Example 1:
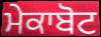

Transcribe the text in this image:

ਮੇਕਾਬੋਟ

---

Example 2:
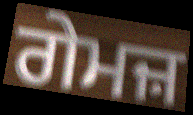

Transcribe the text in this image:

ਗੇਮਜ਼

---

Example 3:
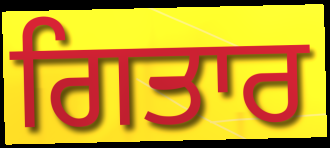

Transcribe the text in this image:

ਗਿਤਾਰ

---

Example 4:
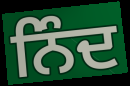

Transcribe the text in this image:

ਨਿੰਦ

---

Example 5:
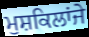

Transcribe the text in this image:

ਮੁਸ਼ਕਿਲਾਂਜੇ